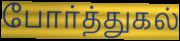
போர்த்துகல்